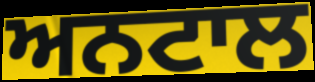
ਅਨਟਾਲ